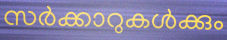
സർക്കാറുകൾക്കും